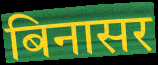
बिनासर